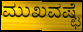
ಮುಖವಷ್ಟೆ